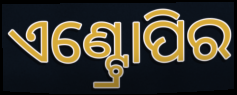
ଏଣ୍ଟ୍ରୋପିର